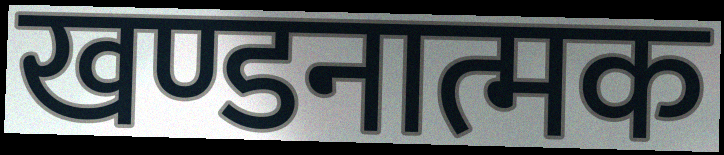
खण्डनात्मक